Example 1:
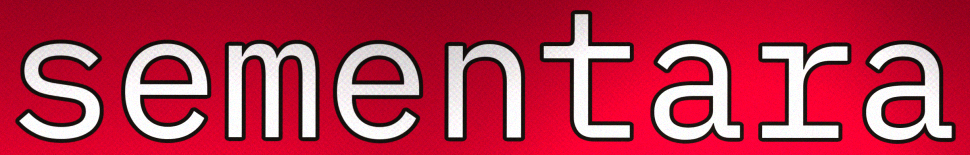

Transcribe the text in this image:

sementara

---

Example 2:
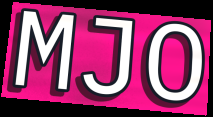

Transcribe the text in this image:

MJO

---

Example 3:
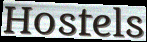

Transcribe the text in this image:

Hostels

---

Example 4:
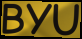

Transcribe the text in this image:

BYU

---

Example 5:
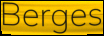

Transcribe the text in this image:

Berges